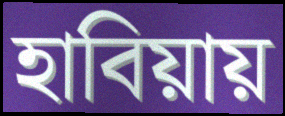
হাবিয়ায়